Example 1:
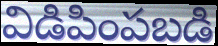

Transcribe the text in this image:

విడిపింపబడి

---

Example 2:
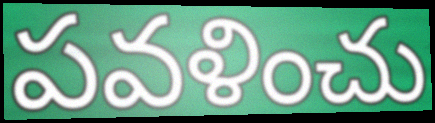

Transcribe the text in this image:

పవళించు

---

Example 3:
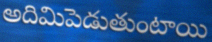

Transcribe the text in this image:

అదిమిపెడుతుంటాయి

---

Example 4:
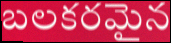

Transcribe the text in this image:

బలకరమైన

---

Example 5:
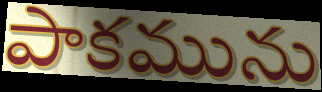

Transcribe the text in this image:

పాకమును